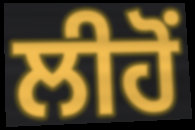
ਲੀਹੋਂ